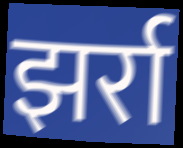
झर्रा